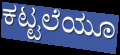
ಕಟ್ಟಲೆಯೂ